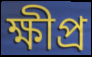
ক্ষীপ্ৰ